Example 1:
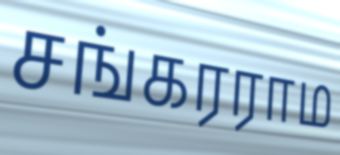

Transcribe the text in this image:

சங்கரராம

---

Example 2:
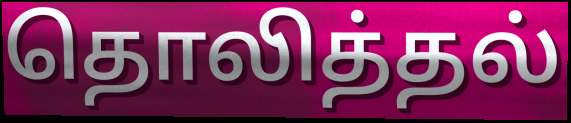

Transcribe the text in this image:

தொலித்தல்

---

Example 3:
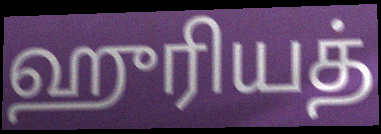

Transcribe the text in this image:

ஹுரியத்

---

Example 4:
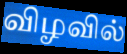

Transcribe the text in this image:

விழவில்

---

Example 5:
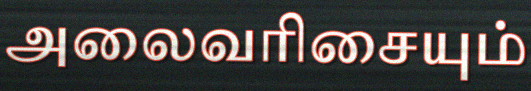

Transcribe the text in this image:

அலைவரிசையும்